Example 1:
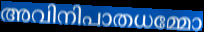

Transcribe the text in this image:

അവിനിപാതധമ്മോ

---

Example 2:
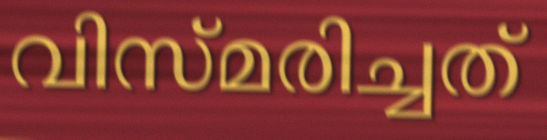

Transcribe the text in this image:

വിസ്മരിച്ചത്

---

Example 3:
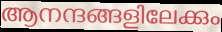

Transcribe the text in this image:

ആനന്ദങ്ങളിലേക്കും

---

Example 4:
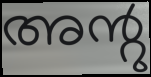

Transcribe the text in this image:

അന്റു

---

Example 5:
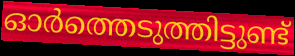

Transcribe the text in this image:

ഓർത്തെടുത്തിട്ടുണ്ട്